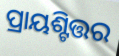
ପ୍ରାୟଶ୍ଟିତ୍ତର